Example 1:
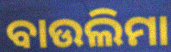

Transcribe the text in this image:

ବାଉଲିମା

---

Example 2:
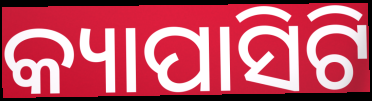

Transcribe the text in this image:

କ୍ୟାପାସିଟି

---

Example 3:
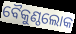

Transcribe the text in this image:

ବୈକୁଣ୍ଠଲୋକ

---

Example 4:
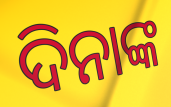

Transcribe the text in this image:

ଦିନାଙ୍କ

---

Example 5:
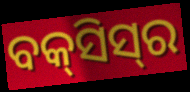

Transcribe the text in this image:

ବକ୍‌ସିସ୍‌ର